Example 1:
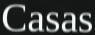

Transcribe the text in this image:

Casas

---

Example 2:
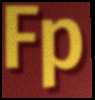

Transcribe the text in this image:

Fp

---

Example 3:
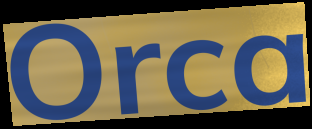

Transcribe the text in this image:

Orca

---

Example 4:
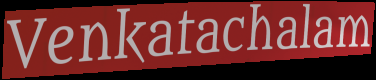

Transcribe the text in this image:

Venkatachalam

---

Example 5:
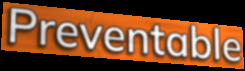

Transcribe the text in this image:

Preventable